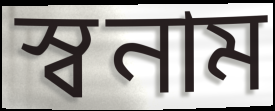
স্বনাম